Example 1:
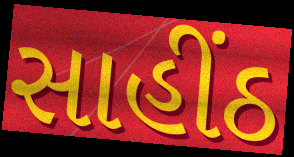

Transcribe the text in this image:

સાહીંઠ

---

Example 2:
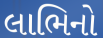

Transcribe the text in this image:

લાભિનો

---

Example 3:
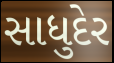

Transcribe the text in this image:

સાધુદેર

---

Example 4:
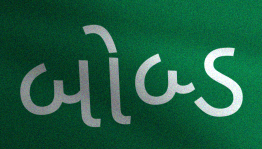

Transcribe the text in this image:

બોબ્ડ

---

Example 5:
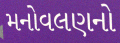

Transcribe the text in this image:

મનોવલણનો